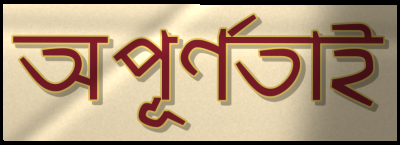
অপূর্ণতাই